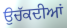
ਉਚੱਕਦੀਆਂ